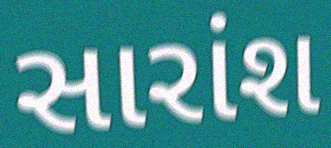
સારાંશ